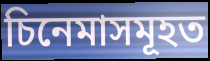
চিনেমাসমূহত